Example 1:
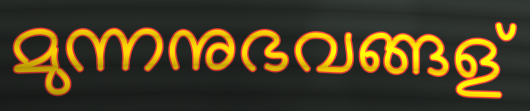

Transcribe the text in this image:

മുന്നനുഭവങ്ങള്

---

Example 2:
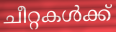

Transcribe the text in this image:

ചീറ്റകൾക്ക്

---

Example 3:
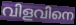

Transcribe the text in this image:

വിളവിനെ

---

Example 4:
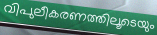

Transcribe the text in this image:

വിപുലീകരണത്തിലൂടെയും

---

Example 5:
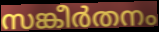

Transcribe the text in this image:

സങ്കീർതനം